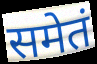
समेतं